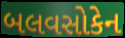
બલવસોકેન